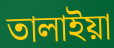
তালাইয়া